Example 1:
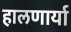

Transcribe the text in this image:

हालणार्या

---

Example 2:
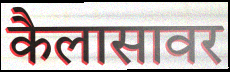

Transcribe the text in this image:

कैलासावर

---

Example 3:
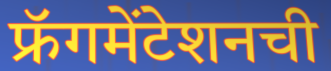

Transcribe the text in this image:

फ्रॅगमेंटेशनची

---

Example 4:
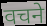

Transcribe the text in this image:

वचने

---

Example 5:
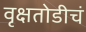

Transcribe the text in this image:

वृक्षतोडीचं